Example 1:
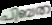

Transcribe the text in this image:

പിബത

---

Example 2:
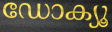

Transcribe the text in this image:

ഡോക്യൂ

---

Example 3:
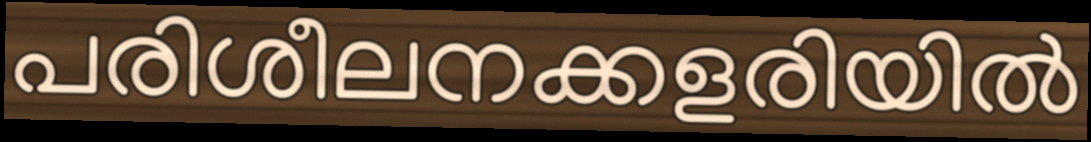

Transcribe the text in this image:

പരിശീലനക്കളരിയിൽ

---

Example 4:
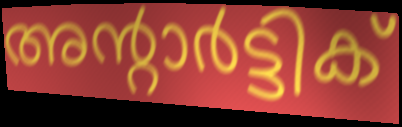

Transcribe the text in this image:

അന്റാർട്ടിക്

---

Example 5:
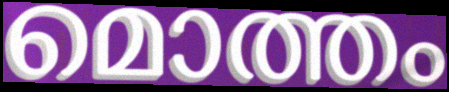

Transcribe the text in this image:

മൊത്തം